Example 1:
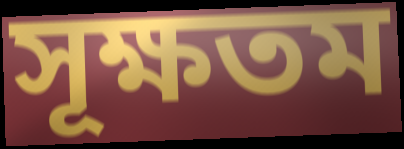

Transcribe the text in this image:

সূক্ষতম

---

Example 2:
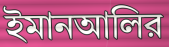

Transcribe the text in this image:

ইমানআলির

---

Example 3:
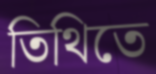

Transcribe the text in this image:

তিথিতে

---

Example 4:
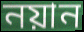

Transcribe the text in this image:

নয়ান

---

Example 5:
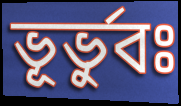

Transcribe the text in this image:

ভূর্ভুবঃ